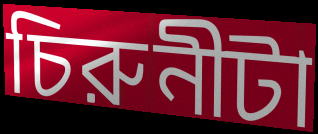
চিরুনীটা